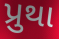
પ્રુથા